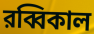
রব্বিকাল